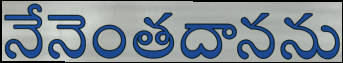
నేనెంతదానను